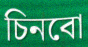
চিনবো